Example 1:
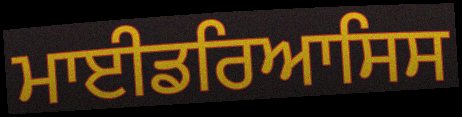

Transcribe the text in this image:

ਮਾਈਡਰਿਆਸਿਸ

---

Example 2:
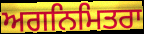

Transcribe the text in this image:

ਅਗਨਿਮਿਤਰਾ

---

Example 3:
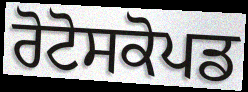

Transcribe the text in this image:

ਰੋਟੋਸਕੋਪਡ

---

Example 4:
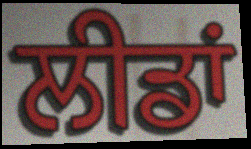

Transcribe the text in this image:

ਲੀਡਾਂ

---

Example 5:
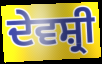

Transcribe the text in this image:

ਦੇਵਸ਼੍ਰੀ